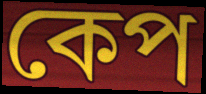
কেপ